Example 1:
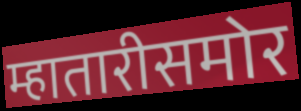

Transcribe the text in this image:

म्हातारीसमोर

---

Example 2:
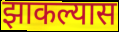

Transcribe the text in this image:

झाकल्यास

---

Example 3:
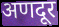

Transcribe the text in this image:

अणदूर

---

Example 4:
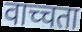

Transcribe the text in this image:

वाच्चता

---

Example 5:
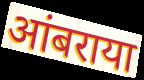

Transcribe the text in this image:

आंबराया